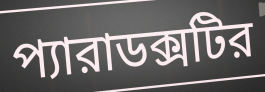
প্যারাডক্সটির